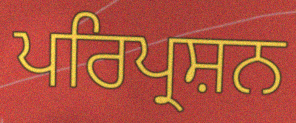
ਪਰਿਪ੍ਰਸ਼ਨ